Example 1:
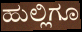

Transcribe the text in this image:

ಹುಲ್ಲಿಗೂ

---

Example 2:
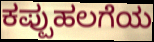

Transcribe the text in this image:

ಕಪ್ಪುಹಲಗೆಯ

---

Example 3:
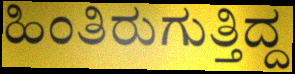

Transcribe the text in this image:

ಹಿಂತಿರುಗುತ್ತಿದ್ದ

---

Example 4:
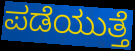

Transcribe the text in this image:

ಪಡೆಯುತ್ತೆ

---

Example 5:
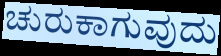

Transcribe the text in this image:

ಚುರುಕಾಗುವುದು